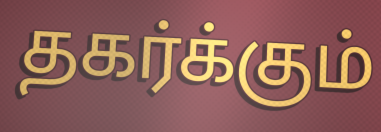
தகர்க்கும்